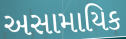
અસામાયિક